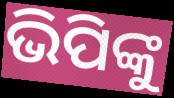
ଭିପିଙ୍କୁ